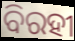
ବିରହୀ